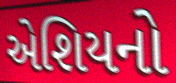
એશિયનો